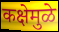
कक्षेमुळे